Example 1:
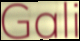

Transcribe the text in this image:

Gali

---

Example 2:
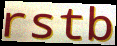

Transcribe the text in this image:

rstb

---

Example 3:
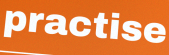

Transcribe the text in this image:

practise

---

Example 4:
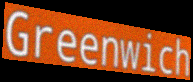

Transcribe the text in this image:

Greenwich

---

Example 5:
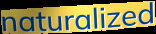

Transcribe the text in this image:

naturalized